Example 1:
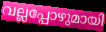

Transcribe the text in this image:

വല്ലപ്പോഴുമായി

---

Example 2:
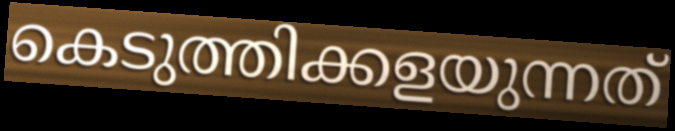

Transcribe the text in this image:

കെടുത്തിക്കളയുന്നത്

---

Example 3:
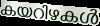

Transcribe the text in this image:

കയറിഴകൾ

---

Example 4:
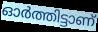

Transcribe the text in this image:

ഓർത്തിട്ടാണ്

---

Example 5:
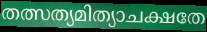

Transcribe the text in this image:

തത്സത്യമിത്യാചക്ഷതേ